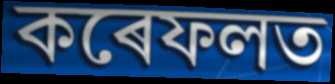
কৰেফলত